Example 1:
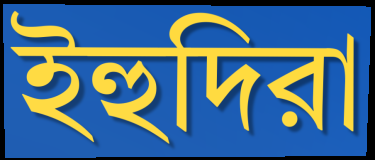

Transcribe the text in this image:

ইহুদিরা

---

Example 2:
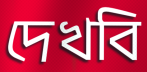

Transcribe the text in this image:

দেখবি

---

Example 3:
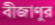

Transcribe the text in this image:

বীজাণুর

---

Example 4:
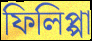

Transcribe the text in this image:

ফিলিপ্পা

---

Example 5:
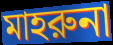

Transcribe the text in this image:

মাহরুনা